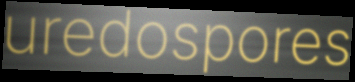
uredospores